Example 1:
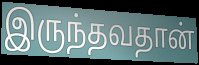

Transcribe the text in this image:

இருந்தவதான்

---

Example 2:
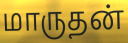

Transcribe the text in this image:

மாருதன்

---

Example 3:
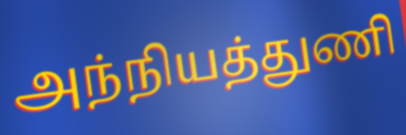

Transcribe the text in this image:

அந்நியத்துணி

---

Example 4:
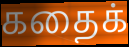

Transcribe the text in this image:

கதைக்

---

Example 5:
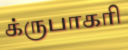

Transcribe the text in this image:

க்ருபாகரி